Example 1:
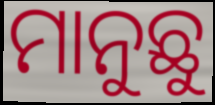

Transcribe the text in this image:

ମାନୁଛୁ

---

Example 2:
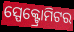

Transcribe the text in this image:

ସ୍ପେକ୍ଟ୍ରୋମିଟର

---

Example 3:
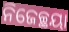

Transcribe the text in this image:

ନିଜେଚ୍ଛୟା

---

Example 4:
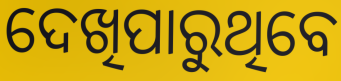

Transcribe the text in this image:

ଦେଖିପାରୁଥିବେ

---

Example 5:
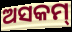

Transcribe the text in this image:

ଅସକମ୍